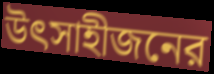
উৎসাহীজনের